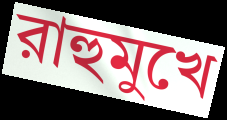
রাহুমুখে